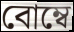
বোম্বে